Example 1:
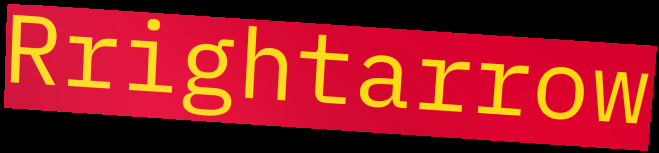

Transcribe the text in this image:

Rrightarrow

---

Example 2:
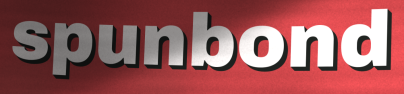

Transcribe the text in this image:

spunbond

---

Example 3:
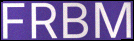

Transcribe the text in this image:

FRBM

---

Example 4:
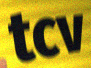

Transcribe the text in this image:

tcv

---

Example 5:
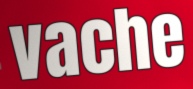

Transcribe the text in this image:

vache